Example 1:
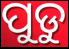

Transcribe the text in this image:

ପୁଡୁ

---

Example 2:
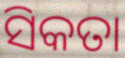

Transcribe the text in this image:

ସିକତା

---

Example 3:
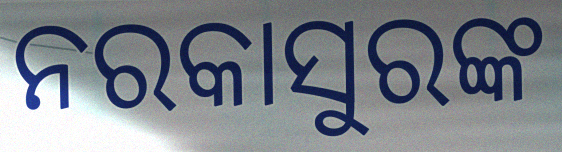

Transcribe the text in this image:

ନରକାସୁରଙ୍କ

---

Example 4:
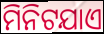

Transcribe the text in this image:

ମିନିଟଯାଏ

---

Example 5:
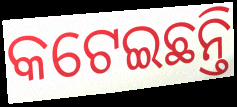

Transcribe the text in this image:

କଟେଇଛନ୍ତି